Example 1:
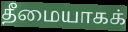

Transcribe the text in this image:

தீமையாகக்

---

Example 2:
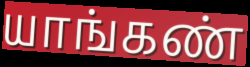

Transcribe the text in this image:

யாங்கண்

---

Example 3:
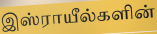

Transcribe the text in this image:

இஸ்ராயீல்களின்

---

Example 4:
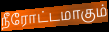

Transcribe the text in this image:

நீரோட்டமாகும்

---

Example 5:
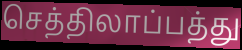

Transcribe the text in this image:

செத்திலாப்பத்து